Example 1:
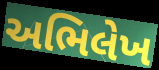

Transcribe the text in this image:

અભિલેખ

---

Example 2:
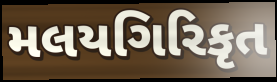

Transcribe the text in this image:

મલયગિરિકૃત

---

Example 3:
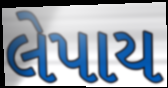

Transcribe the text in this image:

લેપાય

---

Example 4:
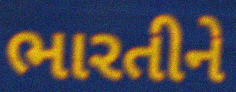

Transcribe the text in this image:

ભારતીને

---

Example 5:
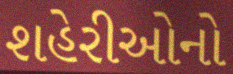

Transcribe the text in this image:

શહેરીઓનો